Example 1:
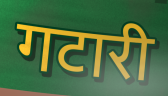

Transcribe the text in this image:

गटारी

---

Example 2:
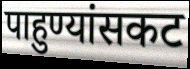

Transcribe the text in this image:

पाहुण्यांसकट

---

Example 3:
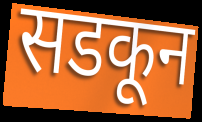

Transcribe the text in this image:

सडकून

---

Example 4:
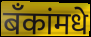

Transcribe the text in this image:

बँकांमधे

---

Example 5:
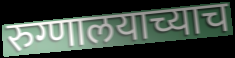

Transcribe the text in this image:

रुग्णालयाच्याच